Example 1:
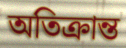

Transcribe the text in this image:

অতিক্রান্ত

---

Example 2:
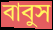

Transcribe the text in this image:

বাবুস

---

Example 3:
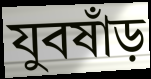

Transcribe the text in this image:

যুবষাঁড়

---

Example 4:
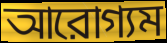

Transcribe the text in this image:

আরোগ্যম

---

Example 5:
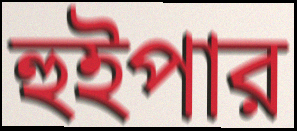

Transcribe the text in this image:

হুইপার